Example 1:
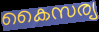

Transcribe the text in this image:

കൈസര്യ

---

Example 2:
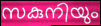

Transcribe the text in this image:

സകുനിയും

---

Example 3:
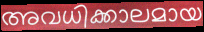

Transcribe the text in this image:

അവധിക്കാലമായ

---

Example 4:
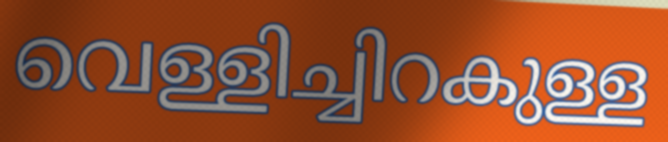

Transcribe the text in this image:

വെള്ളിച്ചിറകുള്ള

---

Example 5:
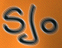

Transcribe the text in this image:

ട്യം